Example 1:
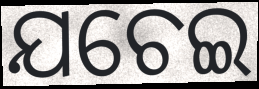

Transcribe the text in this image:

ଯଚେଇ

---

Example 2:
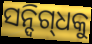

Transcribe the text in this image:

ସନ୍ଦିଗ୍‌ଧକୁ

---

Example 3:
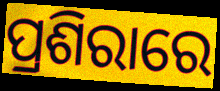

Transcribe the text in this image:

ପ୍ରଶିରାରେ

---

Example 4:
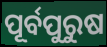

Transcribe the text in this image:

ପୂର୍ବପୁରୁଷ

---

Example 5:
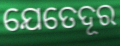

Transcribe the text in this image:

ଯେତେଦୂର